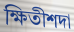
ক্ষিতীশদা